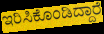
ಇರಿಸಿಕೊಂಡಿದ್ದಾರೆ